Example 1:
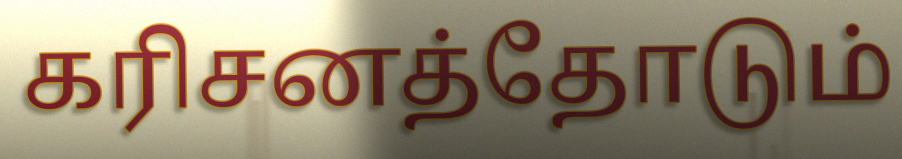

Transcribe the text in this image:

கரிசனத்தோடும்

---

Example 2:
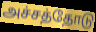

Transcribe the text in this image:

அச்சத்தோடு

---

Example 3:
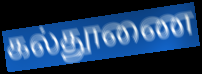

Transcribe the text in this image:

கல்தூணை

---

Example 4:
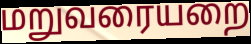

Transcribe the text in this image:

மறுவரையறை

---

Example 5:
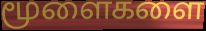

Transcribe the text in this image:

மூளைகளை